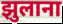
झुलाना